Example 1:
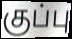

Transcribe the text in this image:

குப்பு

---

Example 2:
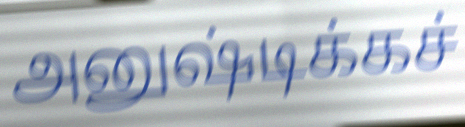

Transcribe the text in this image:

அனுஷ்டிக்கச்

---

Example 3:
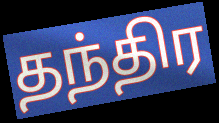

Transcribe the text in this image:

தந்திர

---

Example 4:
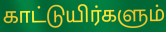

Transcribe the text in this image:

காட்டுயிர்களும்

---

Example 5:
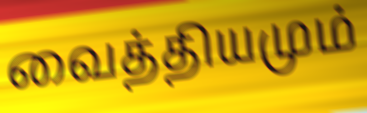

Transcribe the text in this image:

வைத்தியமும்